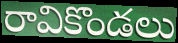
రావికొండలు